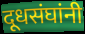
दूधसंघांनी